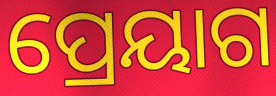
ପ୍ରେୟାଗ